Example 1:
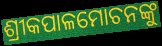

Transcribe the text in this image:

ଶ୍ରୀକପାଳମୋଚନଙ୍କୁ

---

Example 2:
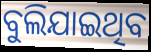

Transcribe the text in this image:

ବୁଲିଯାଇଥିବ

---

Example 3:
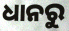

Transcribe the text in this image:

ଧାନରୁ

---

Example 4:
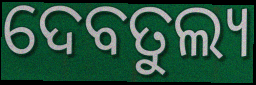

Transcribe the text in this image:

ଦେବତୁଲ୍ୟ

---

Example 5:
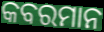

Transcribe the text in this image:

କବରମାନ